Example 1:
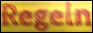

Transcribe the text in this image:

Regeln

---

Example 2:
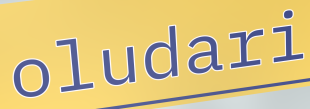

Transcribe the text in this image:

oludari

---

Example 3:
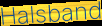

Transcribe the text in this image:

Halsband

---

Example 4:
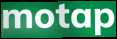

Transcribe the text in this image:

motap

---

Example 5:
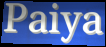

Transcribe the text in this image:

Paiya